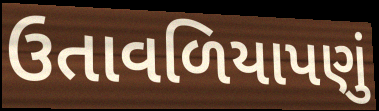
ઉતાવળિયાપણું